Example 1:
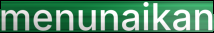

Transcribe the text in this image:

menunaikan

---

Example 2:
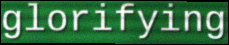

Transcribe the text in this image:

glorifying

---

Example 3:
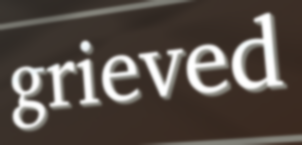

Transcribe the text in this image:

grieved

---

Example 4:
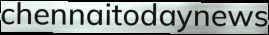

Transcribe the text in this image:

chennaitodaynews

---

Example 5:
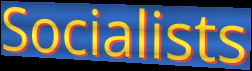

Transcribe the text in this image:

Socialists